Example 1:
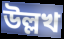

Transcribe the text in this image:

উল্লখ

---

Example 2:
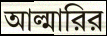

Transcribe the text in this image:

আল্মারির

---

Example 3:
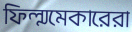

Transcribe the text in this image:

ফিল্মমেকারেরা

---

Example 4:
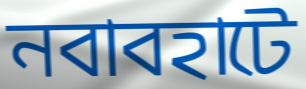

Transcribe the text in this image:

নবাবহাটে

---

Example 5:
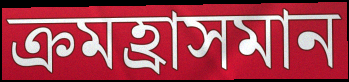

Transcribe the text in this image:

ক্রমহ্রাসমান